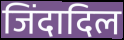
जिंदादिल